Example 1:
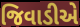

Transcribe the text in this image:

જિવાડીએ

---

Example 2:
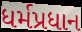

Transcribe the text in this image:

ધર્મપ્રધાન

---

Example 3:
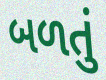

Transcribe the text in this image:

બળતું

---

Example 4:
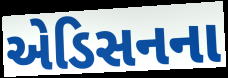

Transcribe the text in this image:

એડિસનના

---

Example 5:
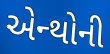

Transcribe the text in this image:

એન્થોની